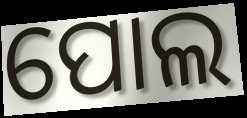
ପୋଲ